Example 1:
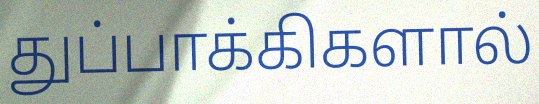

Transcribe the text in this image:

துப்பாக்கிகளால்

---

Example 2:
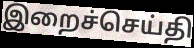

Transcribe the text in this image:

இறைச்செய்தி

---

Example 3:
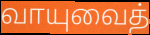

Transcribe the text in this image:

வாயுவைத்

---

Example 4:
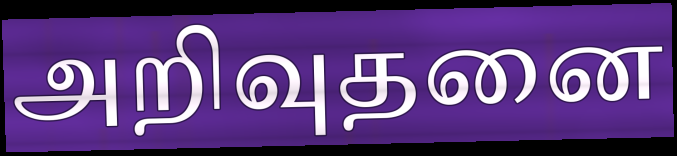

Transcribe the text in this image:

அறிவுதனை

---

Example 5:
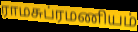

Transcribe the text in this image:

ராமசுப்ரமணியம்